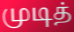
முடித்